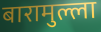
बारामुल्‍ला